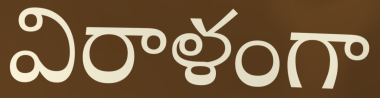
విరాళంగా